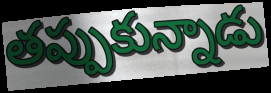
తప్పుకున్నాడు